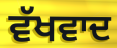
ਵੱਖਵਾਦ